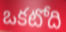
ఒకటోది